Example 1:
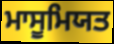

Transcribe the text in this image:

ਮਾਸੂਮਿਯਤ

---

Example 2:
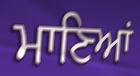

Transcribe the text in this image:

ਮਾਣਿਆਂ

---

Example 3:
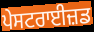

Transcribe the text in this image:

ਪੇਸਟਰਾਈਜ਼ਡ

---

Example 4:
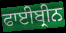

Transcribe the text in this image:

ਫਾਈਬ੍ਰੀਨ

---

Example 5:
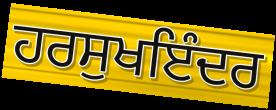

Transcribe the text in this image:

ਹਰਸੁਖਇੰਦਰ